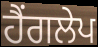
ਹੈਂਗਲੇਪ